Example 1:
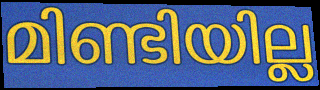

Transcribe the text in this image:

മിണ്ടിയില്ല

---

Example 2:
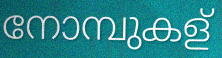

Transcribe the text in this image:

നോമ്പുകള്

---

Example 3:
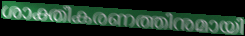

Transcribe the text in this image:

ശാക്തീകരണത്തിനുമായി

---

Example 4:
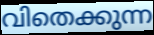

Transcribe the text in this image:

വിതെക്കുന്ന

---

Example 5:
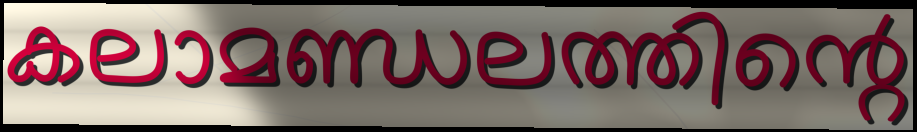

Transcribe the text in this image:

കലാമണ്ഡലത്തിന്റെ